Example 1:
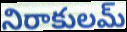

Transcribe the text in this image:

నిరాకులమ్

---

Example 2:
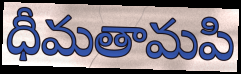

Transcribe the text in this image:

ధీమతామపి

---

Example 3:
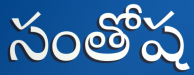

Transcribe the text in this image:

సంతోష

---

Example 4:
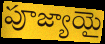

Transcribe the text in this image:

పూజ్యాయై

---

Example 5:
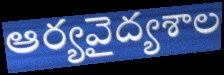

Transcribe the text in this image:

ఆర్యవైద్యశాల